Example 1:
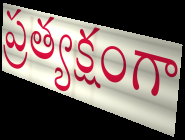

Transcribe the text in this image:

ప్రత్యక్షంగా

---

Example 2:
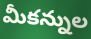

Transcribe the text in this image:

మీకన్నుల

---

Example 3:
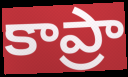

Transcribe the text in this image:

కాప్రా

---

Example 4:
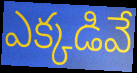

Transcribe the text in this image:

ఎక్కడివే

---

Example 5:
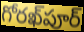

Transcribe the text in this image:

గోరఖ్‌పూర్